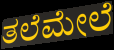
ತಲೆಮೇಲೆ